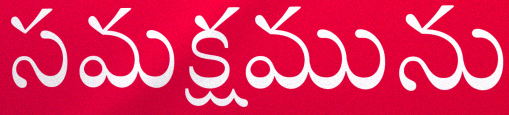
సమక్షమును